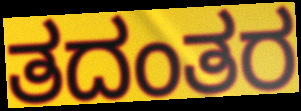
ತದಂತರ